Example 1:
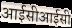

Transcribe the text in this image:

आईसीआईसी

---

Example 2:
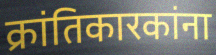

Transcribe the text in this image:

क्रांतिकारकांना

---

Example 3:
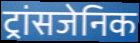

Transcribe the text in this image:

ट्रांसजेनिक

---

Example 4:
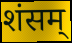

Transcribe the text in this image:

शंसम्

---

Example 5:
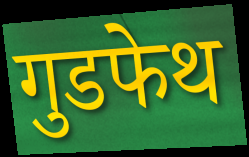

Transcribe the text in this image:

गुडफेथ